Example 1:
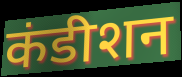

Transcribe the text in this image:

कंडीशन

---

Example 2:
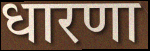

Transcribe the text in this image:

धारणा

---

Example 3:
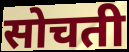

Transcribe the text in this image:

सोचती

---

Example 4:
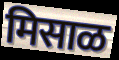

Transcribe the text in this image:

मिसाळ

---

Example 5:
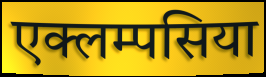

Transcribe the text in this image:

एक्लम्पसिया